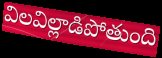
విలవిల్లాడిపోతుంది